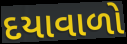
દયાવાળો